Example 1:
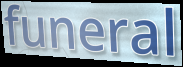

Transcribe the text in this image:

funeral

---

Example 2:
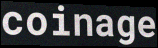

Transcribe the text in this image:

coinage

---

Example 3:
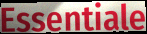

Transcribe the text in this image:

Essentiale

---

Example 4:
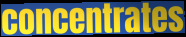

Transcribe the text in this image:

concentrates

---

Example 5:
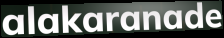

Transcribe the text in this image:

alakaranade